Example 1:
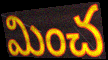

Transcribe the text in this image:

మించ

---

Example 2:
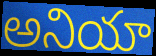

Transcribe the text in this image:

అనియా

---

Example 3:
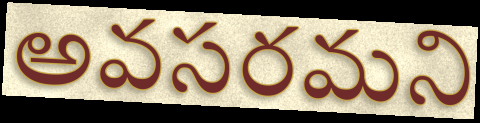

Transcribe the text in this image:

అవసరమని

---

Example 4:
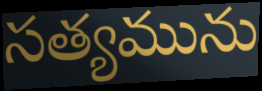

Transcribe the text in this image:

సత్యమును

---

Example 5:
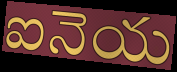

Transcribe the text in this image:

ఐనెయ